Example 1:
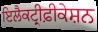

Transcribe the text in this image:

ਇਲੈਕਟ੍ਰੀਫ਼ੀਕੇਸ਼ਨ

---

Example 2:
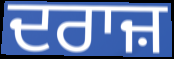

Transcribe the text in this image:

ਦਰਾਜ਼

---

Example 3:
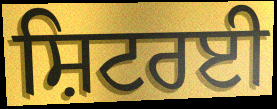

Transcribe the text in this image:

ਸ਼ਿਟਰਈ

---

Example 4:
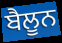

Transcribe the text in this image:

ਬੈਲੂਨ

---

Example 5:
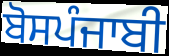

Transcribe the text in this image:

ਬੋਸਪੰਜਾਬੀ